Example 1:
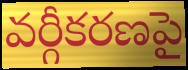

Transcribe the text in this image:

వర్గీకరణపై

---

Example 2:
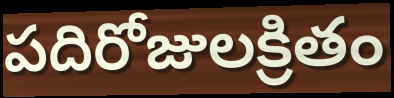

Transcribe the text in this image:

పదిరోజులక్రితం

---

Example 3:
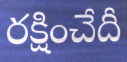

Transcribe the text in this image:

రక్షించేదీ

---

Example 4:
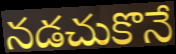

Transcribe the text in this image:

నడచుకొనే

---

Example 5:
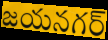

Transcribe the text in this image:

జయనగర్